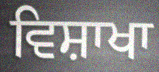
ਵਿਸ਼ਾਖਾ